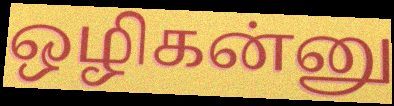
ஒழிகன்னு